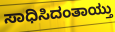
ಸಾಧಿಸಿದಂತಾಯ್ತು